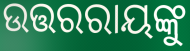
ଉତ୍ତରରାୟଙ୍କୁ